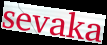
sevaka